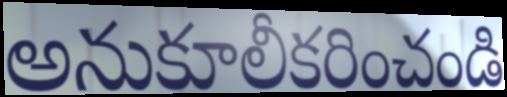
అనుకూలీకరించండి